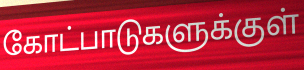
கோட்பாடுகளுக்குள்